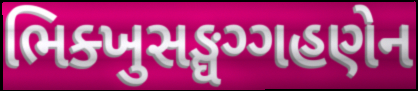
ભિક્ખુસઙ્ઘગ્ગહણેન